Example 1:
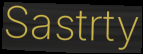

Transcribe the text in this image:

Sastrty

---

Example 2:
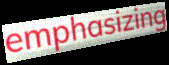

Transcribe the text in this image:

emphasizing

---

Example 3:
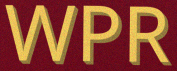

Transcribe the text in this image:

WPR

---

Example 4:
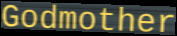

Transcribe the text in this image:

Godmother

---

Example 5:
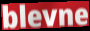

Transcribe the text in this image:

blevne